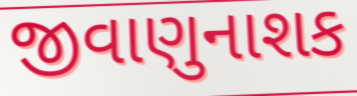
જીવાણુનાશક